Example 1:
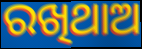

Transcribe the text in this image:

ରଖିଥାଅ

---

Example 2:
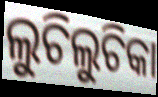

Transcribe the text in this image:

ଲୁଚିଲୁଚିକା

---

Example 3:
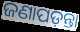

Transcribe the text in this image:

ଜଣାପଡ଼ନ୍ତା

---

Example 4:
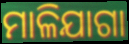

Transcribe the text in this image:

ମାଳିଯାଗା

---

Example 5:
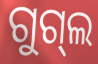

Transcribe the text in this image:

ଗୁଗ୍‌ଲ